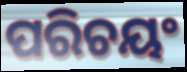
ପରିଚୟଂ